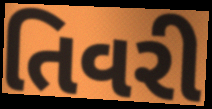
તિવરી